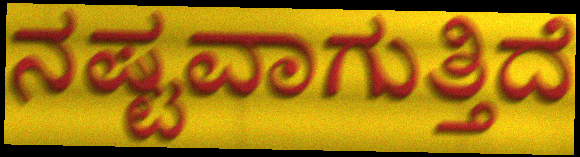
ನಷ್ಟವಾಗುತ್ತಿದೆ